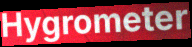
Hygrometer